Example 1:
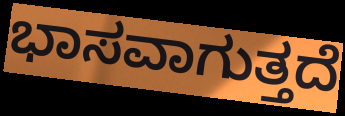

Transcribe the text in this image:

ಭಾಸವಾಗುತ್ತದೆ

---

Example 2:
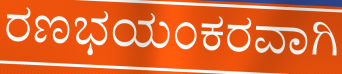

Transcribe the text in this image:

ರಣಭಯಂಕರವಾಗಿ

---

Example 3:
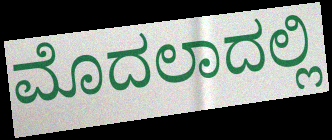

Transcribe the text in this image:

ಮೊದಲಾದಲ್ಲಿ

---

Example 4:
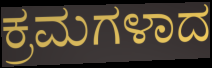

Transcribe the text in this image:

ಕ್ರಮಗಳಾದ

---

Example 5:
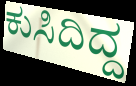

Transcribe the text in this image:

ಕುಸಿದಿದ್ದ